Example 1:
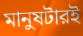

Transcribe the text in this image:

মানুষটারই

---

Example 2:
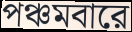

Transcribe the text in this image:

পঞ্চমবারে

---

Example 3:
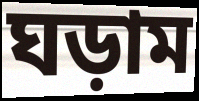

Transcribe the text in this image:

ঘড়াম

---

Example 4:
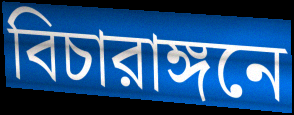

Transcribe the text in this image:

বিচারাঙ্গনে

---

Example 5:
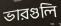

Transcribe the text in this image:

ভারগুলি